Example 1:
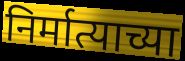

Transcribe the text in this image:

निर्मात्याच्या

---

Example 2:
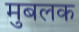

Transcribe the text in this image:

मुबलक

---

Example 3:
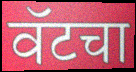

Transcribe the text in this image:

वॅटचा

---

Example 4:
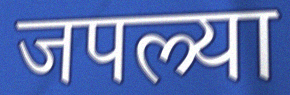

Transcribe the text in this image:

जपल्या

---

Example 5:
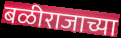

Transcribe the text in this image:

बळीराजाच्या